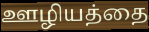
ஊழியத்தை